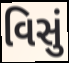
વિસું